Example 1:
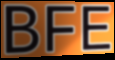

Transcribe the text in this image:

BFE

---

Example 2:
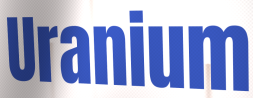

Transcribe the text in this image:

Uranium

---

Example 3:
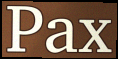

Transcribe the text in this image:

Pax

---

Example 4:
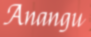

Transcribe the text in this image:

Anangu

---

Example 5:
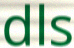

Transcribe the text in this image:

dls